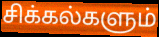
சிக்கல்களும்